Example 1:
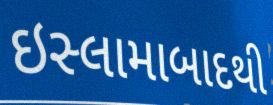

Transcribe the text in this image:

ઇસ્લામાબાદથી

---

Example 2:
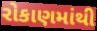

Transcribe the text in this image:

રોકાણમાંથી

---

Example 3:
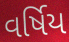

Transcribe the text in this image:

વર્ષિય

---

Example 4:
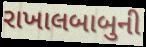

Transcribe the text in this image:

રાખાલબાબુની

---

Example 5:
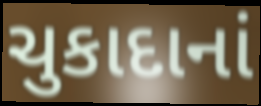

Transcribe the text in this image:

ચુકાદાનાં